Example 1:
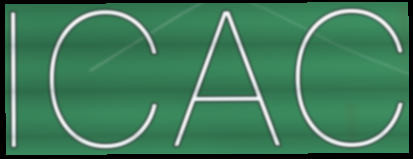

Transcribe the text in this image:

ICAC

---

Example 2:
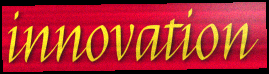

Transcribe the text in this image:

innovation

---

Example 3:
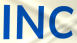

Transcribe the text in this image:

INC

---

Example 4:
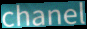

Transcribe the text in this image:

chanel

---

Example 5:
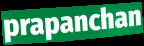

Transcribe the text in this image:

prapanchan